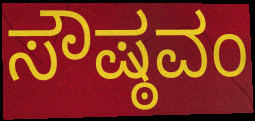
ಸೌಷ್ಠವಂ